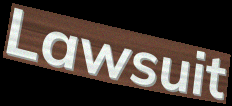
Lawsuit